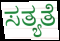
ಸತ್ಯತೆ